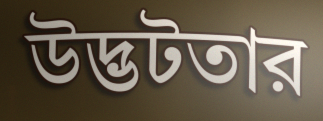
উদ্ভটতার